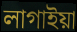
লাগাইয়া